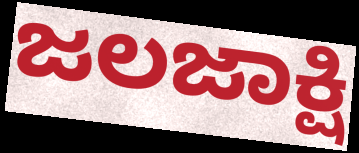
ಜಲಜಾಕ್ಷಿ